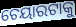
ଚେୟାରଟାକୁ